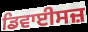
ਡਿਵਾਈਸਜ਼